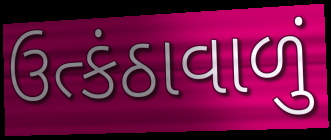
ઉત્કંઠાવાળું